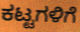
ಕಟ್ಟಗಳಿಗೆ